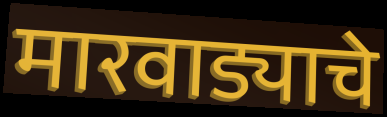
मारवाड्याचे